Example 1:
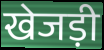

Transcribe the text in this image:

खेजड़ी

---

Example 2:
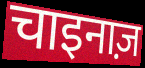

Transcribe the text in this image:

चाइनाज़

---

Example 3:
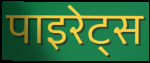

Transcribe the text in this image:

पाइरेट्स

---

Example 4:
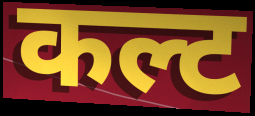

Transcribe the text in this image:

कल्ट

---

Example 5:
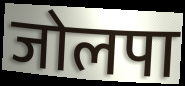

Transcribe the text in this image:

जोलपा